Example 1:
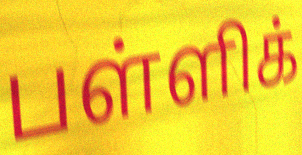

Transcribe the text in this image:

பள்ளிக்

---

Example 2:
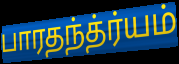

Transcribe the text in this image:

பாரதந்த்ர்யம்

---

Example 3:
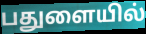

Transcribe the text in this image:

பதுளையில்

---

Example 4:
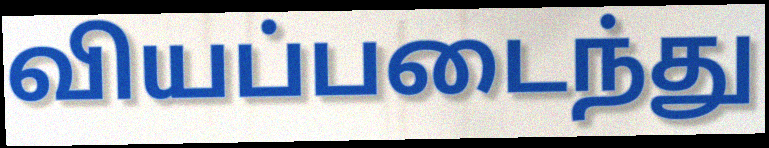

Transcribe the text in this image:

வியப்படைந்து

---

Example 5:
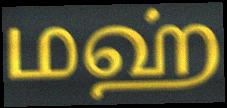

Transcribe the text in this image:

மஹ்